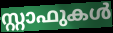
സ്റ്റാഫുകൾ